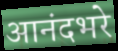
आनंदभरे